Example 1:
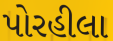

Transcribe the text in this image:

પોરહીલા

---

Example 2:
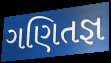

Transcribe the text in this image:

ગણિતજ્ઞ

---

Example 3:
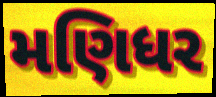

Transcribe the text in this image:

મણિધર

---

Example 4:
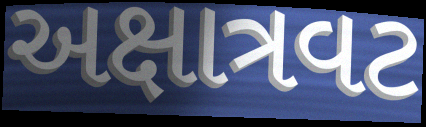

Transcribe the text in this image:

અક્ષાત્રવટ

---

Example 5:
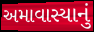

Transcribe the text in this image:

અમાવાસ્યાનું